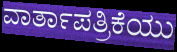
ವಾರ್ತಾಪತ್ರಿಕೆಯು